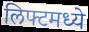
लिफ्टमध्ये